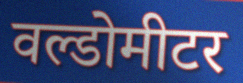
वल्डोमीटर